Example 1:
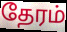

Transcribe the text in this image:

தேரம்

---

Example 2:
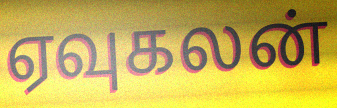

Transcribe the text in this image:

ஏவுகலன்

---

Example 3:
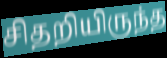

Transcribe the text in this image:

சிதறியிருந்த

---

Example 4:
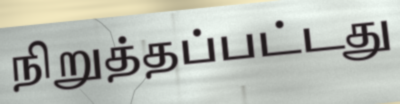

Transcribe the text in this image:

நிறுத்தப்பட்டது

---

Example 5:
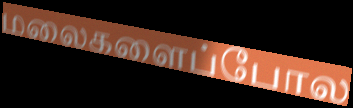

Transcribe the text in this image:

மலைகளைப்போல